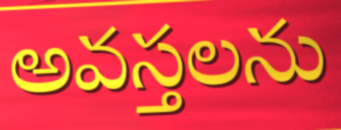
అవస్తలను